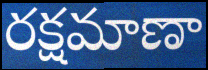
రక్షమాణా